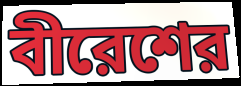
বীরেশের